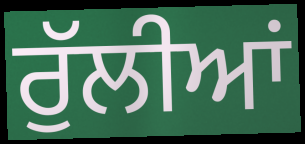
ਰੁੱਲੀਆਂ